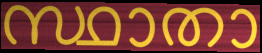
സ്ഥാതാ